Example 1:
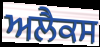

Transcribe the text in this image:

ਅਲੈਕਸ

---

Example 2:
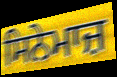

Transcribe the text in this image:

ਸਿਨੇਮਾਜ਼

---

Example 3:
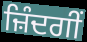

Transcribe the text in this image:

ਜ਼ਿੰਦਗੀਂ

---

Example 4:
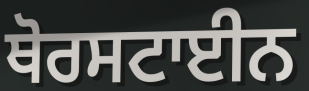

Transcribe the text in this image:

ਥੋਰਸਟਾਈਨ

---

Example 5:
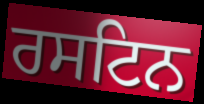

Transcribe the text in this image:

ਰਸਟਿਨ